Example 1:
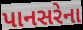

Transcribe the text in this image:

પાનસરેના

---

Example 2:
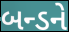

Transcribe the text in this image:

બન્ડને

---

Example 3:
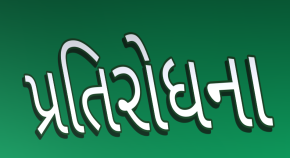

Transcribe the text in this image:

પ્રતિરોધના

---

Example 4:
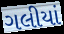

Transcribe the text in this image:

ગલીયાં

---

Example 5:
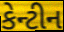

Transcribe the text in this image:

કેન્ટીન